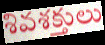
శివశక్తులు